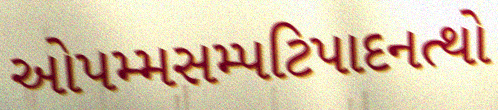
ઓપમ્મસમ્પટિપાદનત્થો